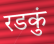
रडकुं